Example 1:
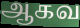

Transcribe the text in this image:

ஆகவ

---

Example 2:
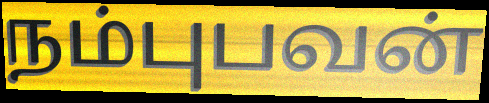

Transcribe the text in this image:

நம்புபவன்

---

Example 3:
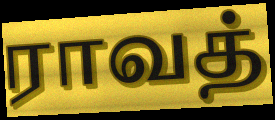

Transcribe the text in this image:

ராவத்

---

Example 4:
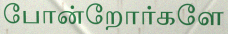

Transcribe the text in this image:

போன்றோர்களே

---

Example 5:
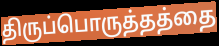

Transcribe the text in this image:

திருப்பொருத்தத்தை